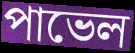
পাভেল